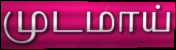
முடமாய்